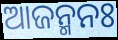
ଆଜନ୍ମନଃ